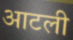
आटली